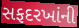
સફદરખાંની